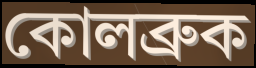
কোলব্রুক